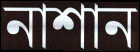
নাশান